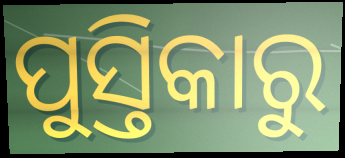
ପୁସ୍ତିକାରୁ